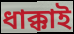
ধাক্কাই